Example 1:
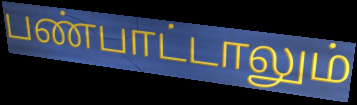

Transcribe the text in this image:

பண்பாட்டாலும்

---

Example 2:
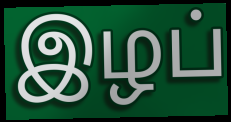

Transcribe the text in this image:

இழப்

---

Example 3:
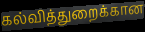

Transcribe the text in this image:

கல்வித்துறைக்கான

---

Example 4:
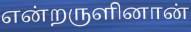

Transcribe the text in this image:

என்றருளினான்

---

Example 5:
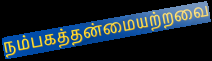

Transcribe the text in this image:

நம்பகத்தன்மையற்றவை